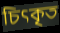
চিৎকৃত